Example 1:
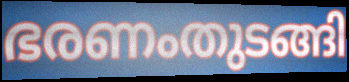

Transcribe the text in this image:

ഭരണംതുടങ്ങി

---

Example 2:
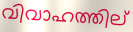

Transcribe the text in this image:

വിവാഹത്തില്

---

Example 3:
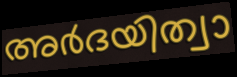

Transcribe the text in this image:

അർദയിത്വാ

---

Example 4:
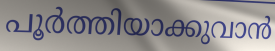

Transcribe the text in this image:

പൂർത്തിയാക്കുവാൻ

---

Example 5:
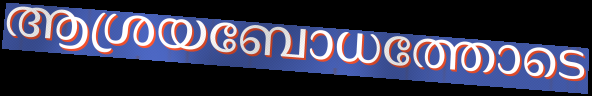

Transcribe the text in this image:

ആശ്രയബോധത്തോടെ